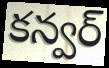
కన్వర్